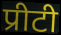
प्रीटी